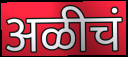
अळीचं